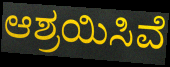
ಆಶ್ರಯಿಸಿವೆ